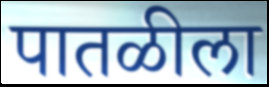
पातळीला